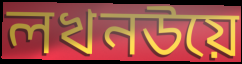
লখনউয়ে